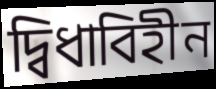
দ্বিধাবিহীন